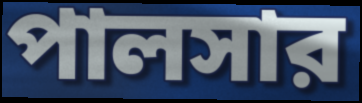
পালসার